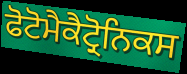
ਫੋਟੋਮੈਕੈਟ੍ਰੋਨਿਕਸ